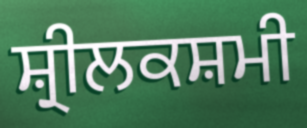
ਸ਼੍ਰੀਲਕਸ਼ਮੀ